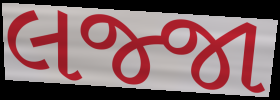
લજ્જા